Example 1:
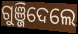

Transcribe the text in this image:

ଗୁଞ୍ଜିଦେଲେ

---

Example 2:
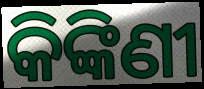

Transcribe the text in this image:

କିଙ୍କିଣୀ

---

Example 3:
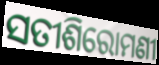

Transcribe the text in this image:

ସତୀଶିରୋମଣୀ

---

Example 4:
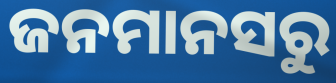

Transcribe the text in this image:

ଜନମାନସରୁ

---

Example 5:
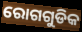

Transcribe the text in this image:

ରୋଗଗୁଡିକ